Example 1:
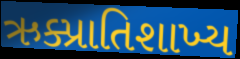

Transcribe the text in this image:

ઋક્પ્રાતિશાખ્ય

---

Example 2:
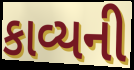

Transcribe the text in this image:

કાવ્યની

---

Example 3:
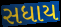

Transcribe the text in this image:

સધાય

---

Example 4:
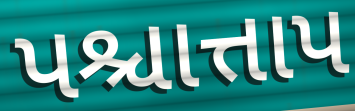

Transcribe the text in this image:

પશ્ચાત્તાપ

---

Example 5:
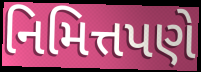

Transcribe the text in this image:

નિમિત્તપણે